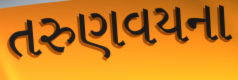
તરુણવયના